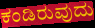
ಕಂಡಿರುವುದು